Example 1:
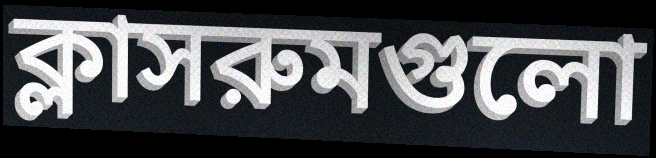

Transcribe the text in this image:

ক্লাসরুমগুলো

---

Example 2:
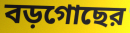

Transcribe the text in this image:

বড়গোছের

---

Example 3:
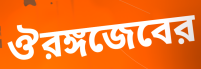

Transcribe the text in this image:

ঔরঙ্গজেবের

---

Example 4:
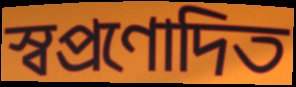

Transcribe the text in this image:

স্বপ্রণোদিত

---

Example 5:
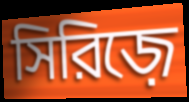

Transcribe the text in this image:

সিরিজ়ে